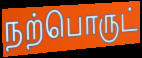
நற்பொருட்